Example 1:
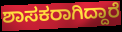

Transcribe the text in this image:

ಶಾಸಕರಾಗಿದ್ದಾರೆ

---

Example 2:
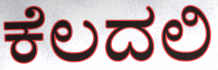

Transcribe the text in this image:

ಕೆಲದಲಿ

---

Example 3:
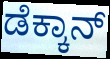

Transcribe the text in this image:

ಡೆಕ್ಕಾನ್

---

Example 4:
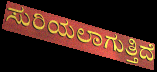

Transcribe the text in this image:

ಸುರಿಯಲಾಗುತ್ತಿದೆ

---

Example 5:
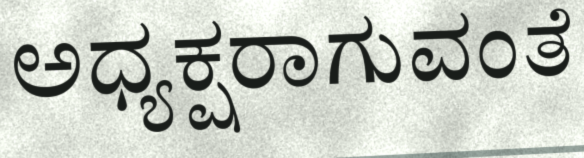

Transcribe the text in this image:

ಅಧ್ಯಕ್ಷರಾಗುವಂತೆ